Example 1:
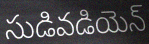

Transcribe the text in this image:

సుడివడియెన్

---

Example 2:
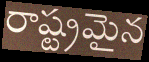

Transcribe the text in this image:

రాష్ట్రమైన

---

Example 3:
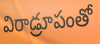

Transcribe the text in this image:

విరాడ్రూపంతో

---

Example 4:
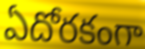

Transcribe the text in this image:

ఏదోరకంగా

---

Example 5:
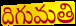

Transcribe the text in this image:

దిగుమతి